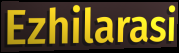
Ezhilarasi